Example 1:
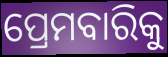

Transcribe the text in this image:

ପ୍ରେମବାରିକୁ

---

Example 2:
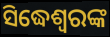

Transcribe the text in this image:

ସିଦ୍ଧେଶ୍ୱରଙ୍କ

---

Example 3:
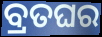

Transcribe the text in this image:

ବ୍ରତଘର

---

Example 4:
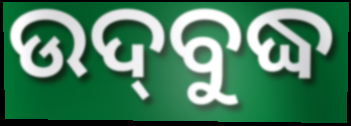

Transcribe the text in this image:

ଉଦ୍‍ବୁଦ୍ଧ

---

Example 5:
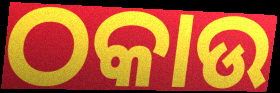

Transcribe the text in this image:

ଠକାଉ